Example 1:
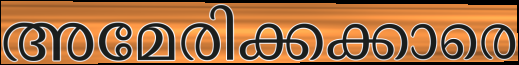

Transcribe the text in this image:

അമേരിക്കക്കാരെ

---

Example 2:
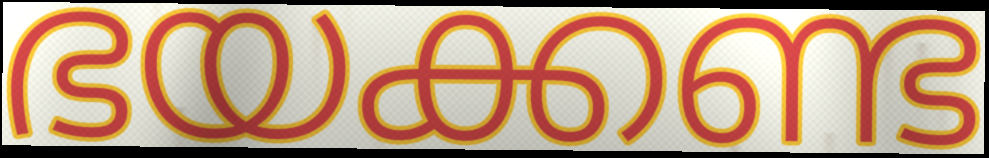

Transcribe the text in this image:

ഭയക്കണ്ട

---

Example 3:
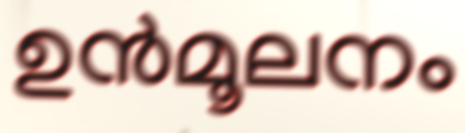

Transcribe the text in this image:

ഉൻമൂലനം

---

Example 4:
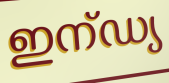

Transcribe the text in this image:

ഇന്ഡ്യ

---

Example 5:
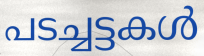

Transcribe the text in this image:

പടച്ചട്ടകൾ